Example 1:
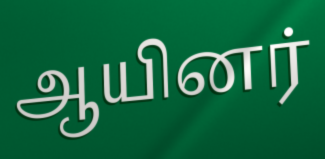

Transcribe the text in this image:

ஆயினர்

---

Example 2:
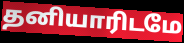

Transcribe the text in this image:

தனியாரிடமே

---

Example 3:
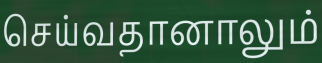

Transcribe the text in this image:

செய்வதானாலும்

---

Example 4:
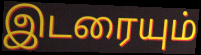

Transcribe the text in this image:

இடரையும்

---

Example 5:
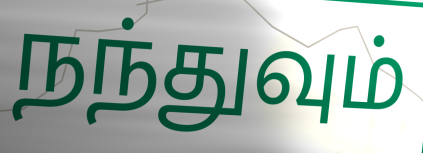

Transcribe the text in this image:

நந்துவும்